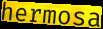
hermosa